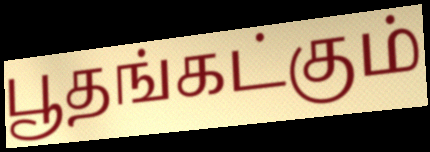
பூதங்கட்கும்